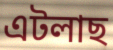
এটলাছ